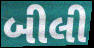
બીલી